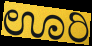
ಊರಿ